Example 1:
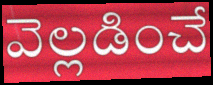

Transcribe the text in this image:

వెల్లడించే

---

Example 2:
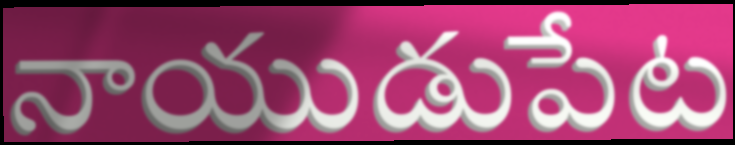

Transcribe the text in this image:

నాయుడుపేట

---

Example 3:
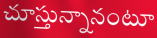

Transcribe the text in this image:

చూస్తున్నానంటూ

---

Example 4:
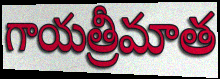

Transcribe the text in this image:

గాయత్రీమాత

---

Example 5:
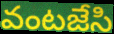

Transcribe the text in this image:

వంటజేసి